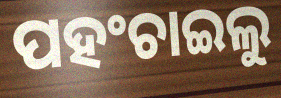
ପହଂଚାଇଲୁ